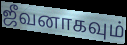
ஜீவனாகவும்